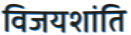
विजयशांति